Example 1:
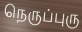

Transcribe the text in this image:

நெருப்புரு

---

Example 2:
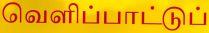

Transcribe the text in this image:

வெளிப்பாட்டுப்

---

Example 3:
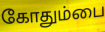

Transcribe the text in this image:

கோதும்பை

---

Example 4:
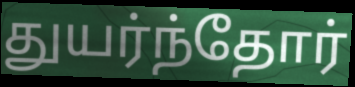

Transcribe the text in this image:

துயர்ந்தோர்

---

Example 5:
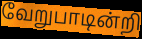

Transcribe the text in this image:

வேறுபாடின்றி